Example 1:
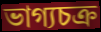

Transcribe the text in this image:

ভাগ্যচক্র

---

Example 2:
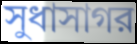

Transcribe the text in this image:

সুধাসাগর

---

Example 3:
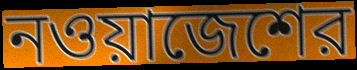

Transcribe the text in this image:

নওয়াজেশের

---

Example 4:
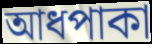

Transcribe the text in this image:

আধপাকা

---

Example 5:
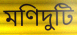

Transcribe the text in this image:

মণিদুটি